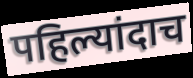
पहिल्यांदाच